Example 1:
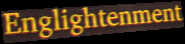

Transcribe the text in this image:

Englightenment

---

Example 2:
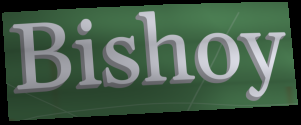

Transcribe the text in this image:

Bishoy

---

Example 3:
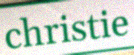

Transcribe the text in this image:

christie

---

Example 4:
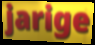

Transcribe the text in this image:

jarige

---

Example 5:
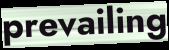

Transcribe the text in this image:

prevailing